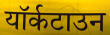
यॉर्कटाउन